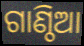
ଗାଣ୍ଠିଆ